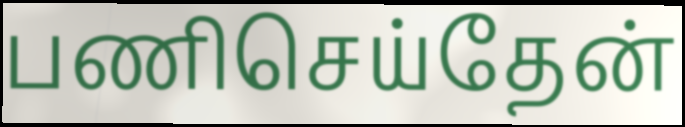
பணிசெய்தேன்